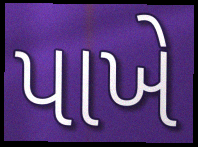
પાખે